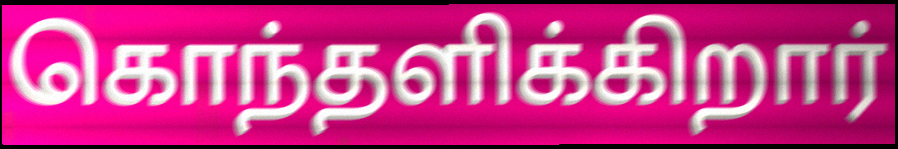
கொந்தளிக்கிறார்